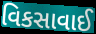
વિકસાવાઈ